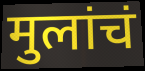
मुलांचं